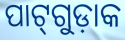
ପାଟ୍‌ଗୁଡ଼ାକ